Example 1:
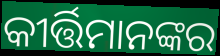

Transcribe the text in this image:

କୀର୍ତ୍ତିମାନଙ୍କର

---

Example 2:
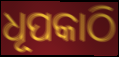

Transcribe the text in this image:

ଧୂପକାଠି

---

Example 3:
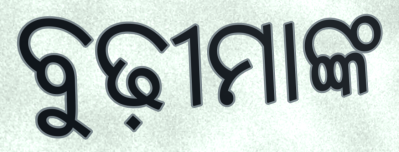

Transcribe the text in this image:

ବୁଢ଼ୀମାଙ୍କ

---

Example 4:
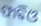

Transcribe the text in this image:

ଫାବିଓ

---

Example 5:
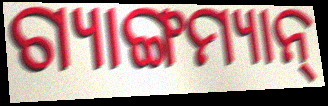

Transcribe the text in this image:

ଗ୍ୟାଙ୍ଗମ୍ୟାନ୍